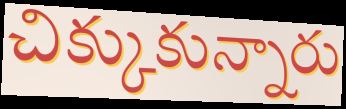
చిక్కుకున్నారు